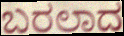
ಬರಲಾದ